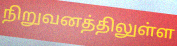
நிறுவனத்திலுள்ள